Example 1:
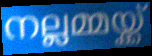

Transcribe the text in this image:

നല്ലമ്മയ്ക്ക്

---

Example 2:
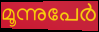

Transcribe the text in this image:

മൂന്നുപേർ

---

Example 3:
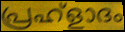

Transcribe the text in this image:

പ്രഹ്ളാദം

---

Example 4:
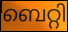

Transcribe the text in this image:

ബെറ്റി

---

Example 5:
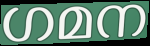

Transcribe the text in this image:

ഗമന